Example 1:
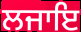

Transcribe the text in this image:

ਲਜਾਇ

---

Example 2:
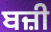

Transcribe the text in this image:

ਬਜ਼ੀ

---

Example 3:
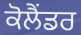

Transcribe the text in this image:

ਕੋਲੈਂਡਰ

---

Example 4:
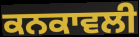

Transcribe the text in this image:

ਕਨਕਾਵਲੀ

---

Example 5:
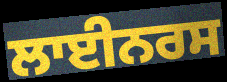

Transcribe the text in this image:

ਲਾਈਨਰਸ